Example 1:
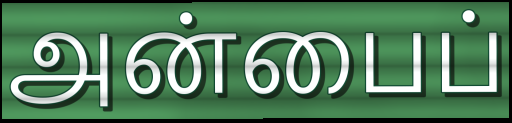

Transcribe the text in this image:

அன்பைப்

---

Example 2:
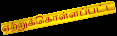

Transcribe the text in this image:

ஏற்றுக்கொள்ளப்பட்ட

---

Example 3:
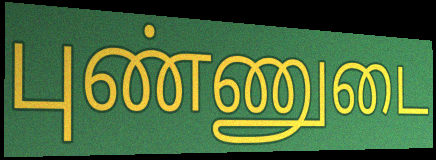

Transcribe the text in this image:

புண்ணுடை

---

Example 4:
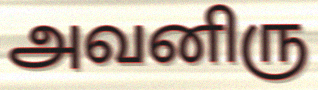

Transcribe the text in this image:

அவனிரு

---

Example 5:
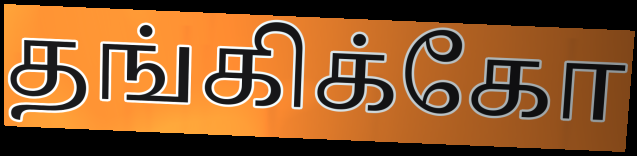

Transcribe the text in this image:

தங்கிக்கோ